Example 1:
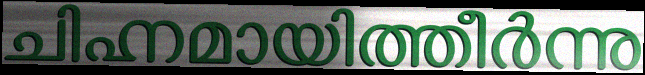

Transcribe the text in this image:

ചിഹ്നമായിത്തീർന്നു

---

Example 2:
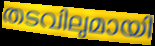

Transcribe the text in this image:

തടവിലുമായി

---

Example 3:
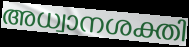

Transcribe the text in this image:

അധ്വാനശക്തി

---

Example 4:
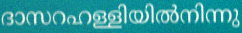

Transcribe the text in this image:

ദാസറഹള്ളിയിൽനിന്നു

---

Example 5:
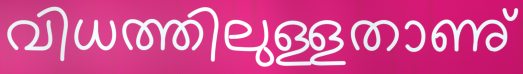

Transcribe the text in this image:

വിധത്തിലുള്ളതാണു്